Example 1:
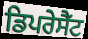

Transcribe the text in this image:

ਡਿਪਰੇਸੈਂਟ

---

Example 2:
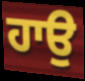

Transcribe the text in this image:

ਹਾਉ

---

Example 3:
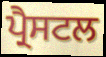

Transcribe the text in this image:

ਪ੍ਰੈਸਟਲ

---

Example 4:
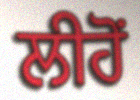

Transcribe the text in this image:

ਲੀਹੋਂ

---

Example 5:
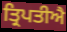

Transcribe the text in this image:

ਤ੍ਰਿਪਤੀਐ